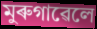
মুৰুগাৱেলে